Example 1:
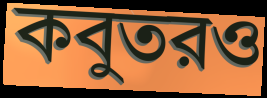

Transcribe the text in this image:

কবুতরও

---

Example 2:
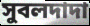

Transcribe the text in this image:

সুবলদাদা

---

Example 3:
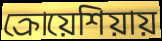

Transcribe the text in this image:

ক্রোয়েশিয়ায়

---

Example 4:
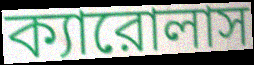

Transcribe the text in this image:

ক্যারোলাস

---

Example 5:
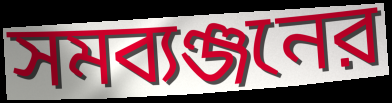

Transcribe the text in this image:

সমব্যঞ্জনের